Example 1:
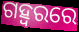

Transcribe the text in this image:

ଗହ୍ୱରରେ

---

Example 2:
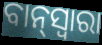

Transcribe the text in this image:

ବାନ୍‌ସ୍ୱାରା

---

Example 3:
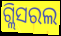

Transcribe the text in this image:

ଗ୍ଲିସରଲ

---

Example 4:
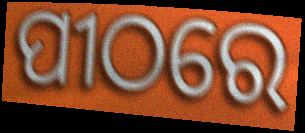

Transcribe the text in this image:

ପୀଠରେ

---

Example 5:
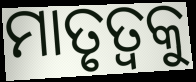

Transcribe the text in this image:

ମାତୃତ୍ବକୁ